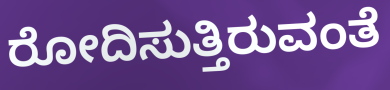
ರೋದಿಸುತ್ತಿರುವಂತೆ